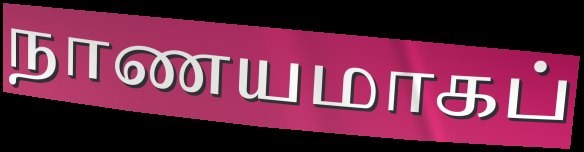
நாணயமாகப்